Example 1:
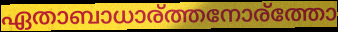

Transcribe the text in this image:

ഏതാബാധാര്ത്തനോര്ത്തോ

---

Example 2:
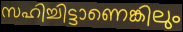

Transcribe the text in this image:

സഹിച്ചിട്ടാണെങ്കിലും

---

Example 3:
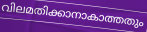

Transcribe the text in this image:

വിലമതിക്കാനാകാത്തതും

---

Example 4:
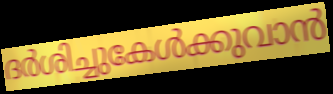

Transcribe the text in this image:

ദർശിച്ചുകേൾക്കുവാൻ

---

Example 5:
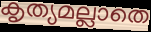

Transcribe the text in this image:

കൃത്യമല്ലാതെ